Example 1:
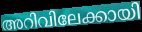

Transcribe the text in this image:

അറിവിലേക്കായി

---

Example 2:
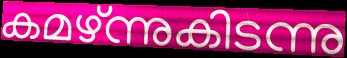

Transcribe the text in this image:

കമഴ്ന്നുകിടന്നു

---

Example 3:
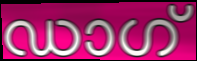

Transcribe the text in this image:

ഡാഗ്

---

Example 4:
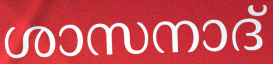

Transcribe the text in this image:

ശാസനാദ്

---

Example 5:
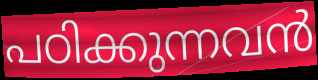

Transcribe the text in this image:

പഠിക്കുന്നവൻ